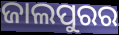
ଜାଲପୁରର